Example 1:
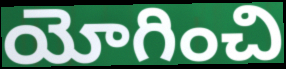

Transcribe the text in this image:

యోగించి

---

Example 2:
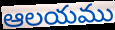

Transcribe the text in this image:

ఆలయము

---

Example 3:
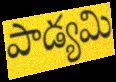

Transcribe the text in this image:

పాడ్యమి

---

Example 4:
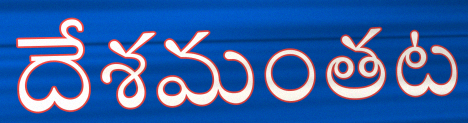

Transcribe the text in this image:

దేశమంతట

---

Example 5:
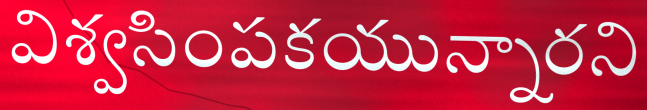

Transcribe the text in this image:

విశ్వసింపకయున్నారని